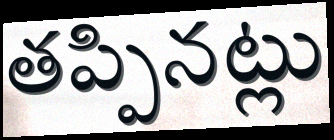
తప్పినట్లు